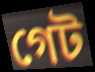
গেট